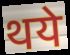
थये